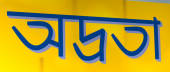
অদ্রতা